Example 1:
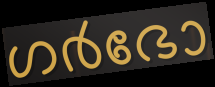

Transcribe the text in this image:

ഗർഭോ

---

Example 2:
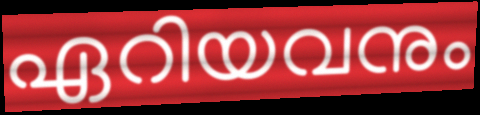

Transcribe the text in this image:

ഏറിയവനും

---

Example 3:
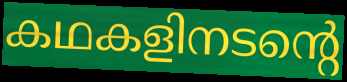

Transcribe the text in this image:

കഥകളിനടന്റെ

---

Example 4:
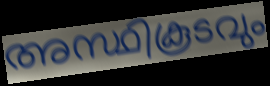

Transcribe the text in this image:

അസ്ഥികൂടവും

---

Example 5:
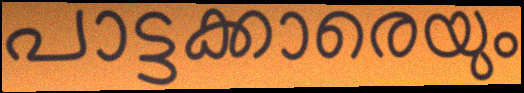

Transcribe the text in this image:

പാട്ടക്കാരെയും